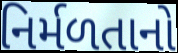
નિર્મળતાનો